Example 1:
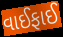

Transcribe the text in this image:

વાઈફાઈ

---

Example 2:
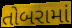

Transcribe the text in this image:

તોબરામાં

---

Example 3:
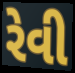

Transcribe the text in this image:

રેવી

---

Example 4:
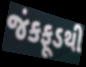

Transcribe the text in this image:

જંકફૂડથી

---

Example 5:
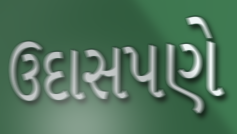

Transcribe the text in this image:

ઉદાસપણે